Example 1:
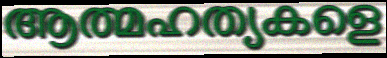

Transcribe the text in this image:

ആത്മഹത്യകളെ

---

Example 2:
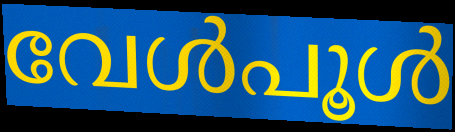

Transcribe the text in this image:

വേൾപൂൾ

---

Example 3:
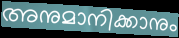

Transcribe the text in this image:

അനുമാനിക്കാനും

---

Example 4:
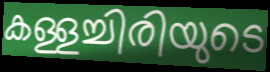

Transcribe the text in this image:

കള്ളച്ചിരിയുടെ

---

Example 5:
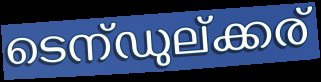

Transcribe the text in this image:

ടെന്ഡുല്ക്കര്